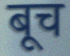
बूच